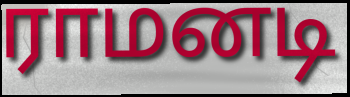
ராமனடி